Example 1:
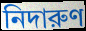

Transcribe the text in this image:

নিদারুণ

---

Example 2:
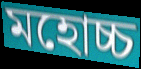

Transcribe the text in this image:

মহোচ্চ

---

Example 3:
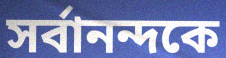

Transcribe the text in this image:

সর্বানন্দকে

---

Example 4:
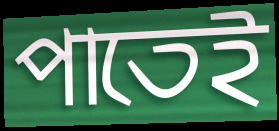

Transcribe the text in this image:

পাতেই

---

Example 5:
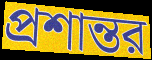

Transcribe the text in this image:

প্রশান্তর